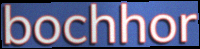
bochhor